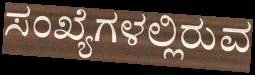
ಸಂಖ್ಯೆಗಳಲ್ಲಿರುವ